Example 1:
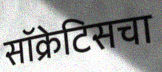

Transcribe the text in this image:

सॉक्रेटिसचा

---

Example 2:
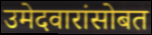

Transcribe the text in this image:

उमेदवारांसोबत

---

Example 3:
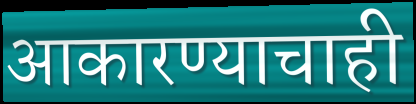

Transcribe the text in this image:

आकारण्याचाही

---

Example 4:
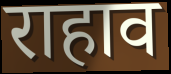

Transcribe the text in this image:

राहाव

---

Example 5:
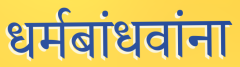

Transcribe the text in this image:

धर्मबांधवांना